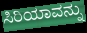
ಸಿರಿಯಾವನ್ನು